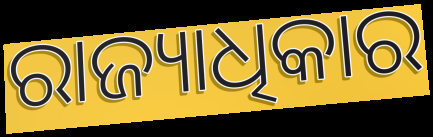
ରାଜ୍ୟାଧିକାର